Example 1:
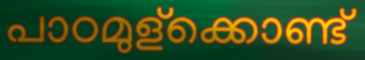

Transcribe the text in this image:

പാഠമുള്ക്കൊണ്ട്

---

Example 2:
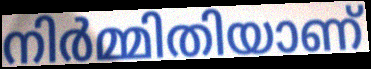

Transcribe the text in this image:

നിർമ്മിതിയാണ്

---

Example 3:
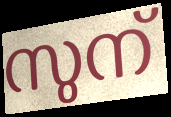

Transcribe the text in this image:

സുന്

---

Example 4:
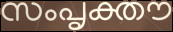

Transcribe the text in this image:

സംപൃക്തൗ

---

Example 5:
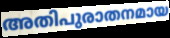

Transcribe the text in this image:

അതിപുരാതനമായ